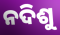
ନଦିଶୁ